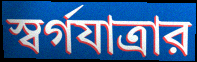
স্বর্গযাত্রার